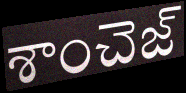
శాంచెజ్